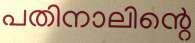
പതിനാലിന്റെ